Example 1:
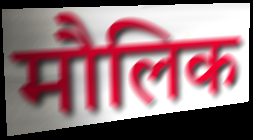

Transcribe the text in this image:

मौलिक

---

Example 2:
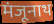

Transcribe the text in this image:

मंजूनाथ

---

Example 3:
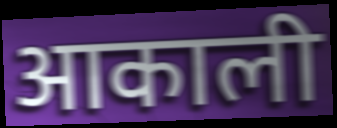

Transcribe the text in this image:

आकाली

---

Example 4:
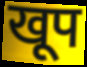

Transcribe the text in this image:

खूप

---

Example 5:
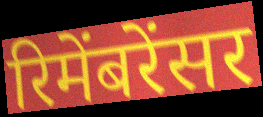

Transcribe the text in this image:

रिमेंबरेंसर